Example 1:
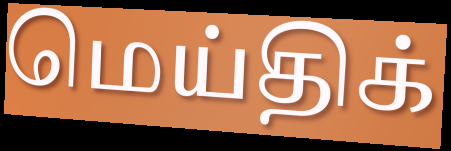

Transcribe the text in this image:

மெய்திக்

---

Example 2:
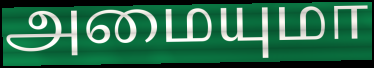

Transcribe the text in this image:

அமையுமா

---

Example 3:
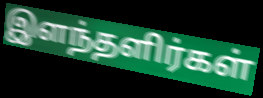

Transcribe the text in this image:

இளந்தளிர்கள்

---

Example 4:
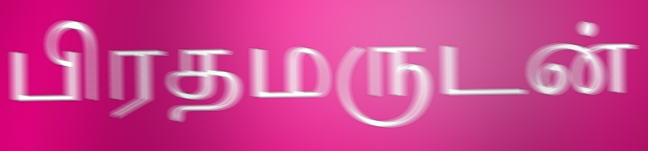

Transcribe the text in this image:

பிரதமருடன்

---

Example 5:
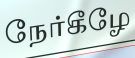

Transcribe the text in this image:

நேர்கீழே